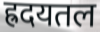
ह्रदयतल